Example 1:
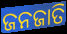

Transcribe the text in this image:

ଜନଜାତି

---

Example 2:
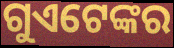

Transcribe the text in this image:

ଗୁଏଟେଙ୍କର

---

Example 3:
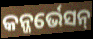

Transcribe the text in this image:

କନ୍ଜର୍ଭେସନ୍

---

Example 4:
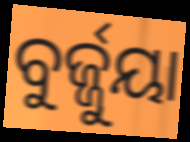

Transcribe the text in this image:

ବୁର୍ଜ୍ଜୁୟା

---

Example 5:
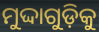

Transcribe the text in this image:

ମୁଦ୍ଦାଗୁଡ଼ିକୁ